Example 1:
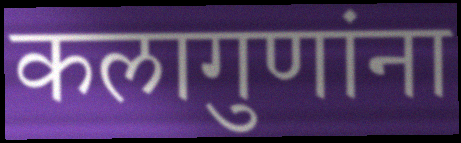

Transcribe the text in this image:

कलागुणांना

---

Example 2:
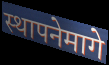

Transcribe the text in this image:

स्थापनेमागे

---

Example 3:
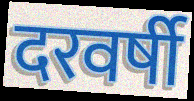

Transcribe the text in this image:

दरवर्षी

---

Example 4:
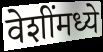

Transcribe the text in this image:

वेशींमध्ये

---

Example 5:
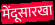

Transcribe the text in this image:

मेंदूसारखा